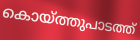
കൊയ്ത്തുപാടത്ത്